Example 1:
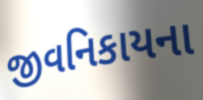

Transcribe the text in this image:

જીવનિકાયના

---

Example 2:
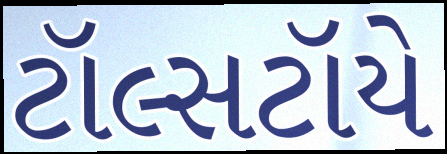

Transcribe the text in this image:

ટૉલ્સટૉયે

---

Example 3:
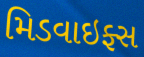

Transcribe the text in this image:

મિડવાઇફ્સ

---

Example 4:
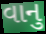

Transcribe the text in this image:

વાનુ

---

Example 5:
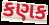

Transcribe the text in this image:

કણક